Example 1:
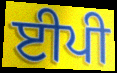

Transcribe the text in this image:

ਈਪੀ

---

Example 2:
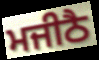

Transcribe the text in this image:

ਮਜੀਠੈ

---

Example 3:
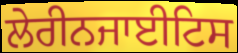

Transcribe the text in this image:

ਲੇਰੀਨਜਾਈਟਿਸ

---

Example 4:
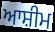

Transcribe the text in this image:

ਆਸ਼ੀਮ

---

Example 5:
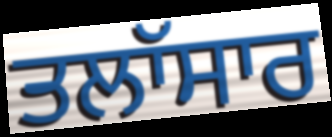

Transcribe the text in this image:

ਤਲਾੱਸਾਰ